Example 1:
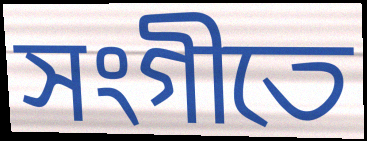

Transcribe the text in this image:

সংগীতে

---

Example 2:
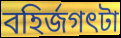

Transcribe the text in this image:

বহির্জগৎটা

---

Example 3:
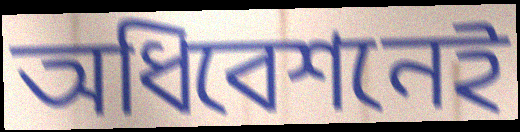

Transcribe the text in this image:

অধিবেশনেই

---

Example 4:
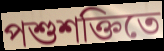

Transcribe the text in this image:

পশুশক্তিতে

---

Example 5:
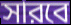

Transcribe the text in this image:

সারবে